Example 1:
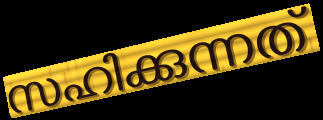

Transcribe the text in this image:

സഹിക്കുന്നത്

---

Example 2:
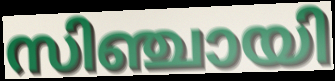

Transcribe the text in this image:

സിഞ്ചായി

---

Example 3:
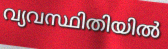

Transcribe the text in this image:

വ്യവസ്ഥിതിയിൽ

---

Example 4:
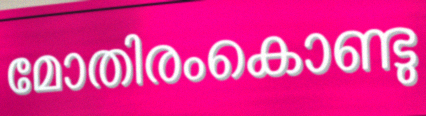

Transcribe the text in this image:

മോതിരംകൊണ്ടു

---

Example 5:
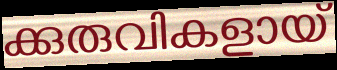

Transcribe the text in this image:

ക്കുരുവികളായ്